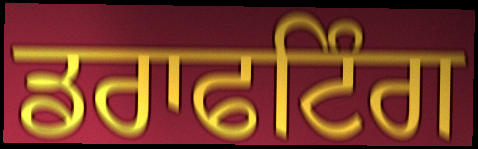
ਡਰਾਫਟਿੰਗ